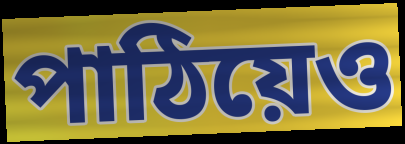
পাঠিয়েও